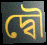
দ্বৌ